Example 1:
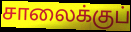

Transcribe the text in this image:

சாலைக்குப்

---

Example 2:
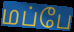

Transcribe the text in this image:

மப்பே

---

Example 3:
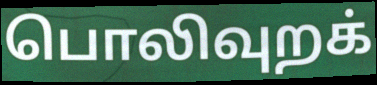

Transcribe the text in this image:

பொலிவுறக்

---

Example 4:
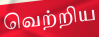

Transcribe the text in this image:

வெற்றிய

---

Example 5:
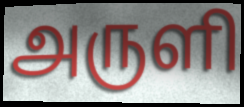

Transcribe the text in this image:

அருளி